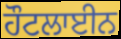
ਹੌਟਲਾਈਨ